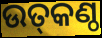
ଉତ୍‌କଣ୍ଠ